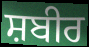
ਸ਼ਬੀਰ